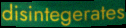
disintegerates